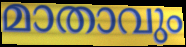
മാതാവും